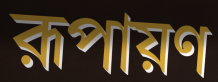
রূপায়ণ